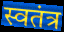
स्वतंत्र